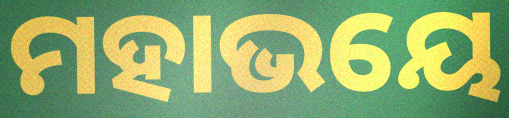
ମହାଭୟେ